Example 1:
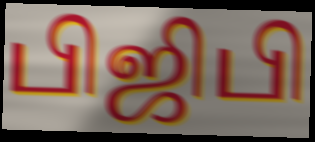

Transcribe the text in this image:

பிஜிபி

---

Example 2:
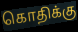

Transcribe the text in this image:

கொதிக்கு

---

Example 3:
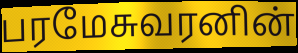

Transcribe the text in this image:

பரமேசுவரனின்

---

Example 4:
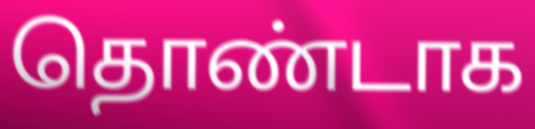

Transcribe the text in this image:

தொண்டாக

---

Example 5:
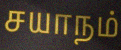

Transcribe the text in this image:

சயாநம்